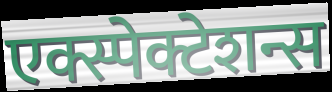
एक्स्पेक्टेशन्स